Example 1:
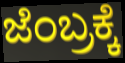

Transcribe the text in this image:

ಜೆಂಬ್ರಕ್ಕೆ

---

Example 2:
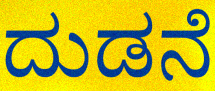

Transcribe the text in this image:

ದುಡನೆ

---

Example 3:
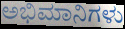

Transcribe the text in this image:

ಅಭಿಮಾನಿಗಳು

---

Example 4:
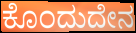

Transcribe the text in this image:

ಕೊಂದುದೇನ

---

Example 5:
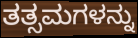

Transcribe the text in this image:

ತತ್ಸಮಗಳನ್ನು